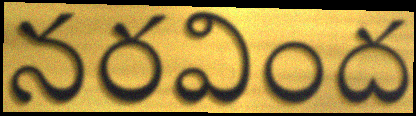
నరవింద